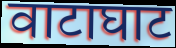
वाटाघाट